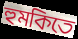
হুমকিতে